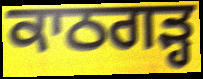
ਕਾਠਗਡ਼੍ਹ